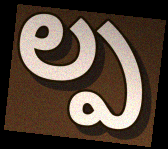
ల్ప